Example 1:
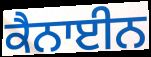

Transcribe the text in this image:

ਕੈਨਾਈਨ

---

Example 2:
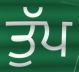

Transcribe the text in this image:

ਤੁੱਪ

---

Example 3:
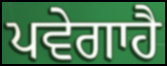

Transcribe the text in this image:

ਪਵੇਗਾਹੈ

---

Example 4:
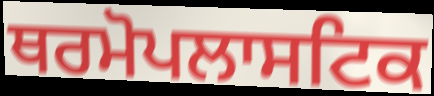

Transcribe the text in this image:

ਥਰਮੋਪਲਾਸਟਿਕ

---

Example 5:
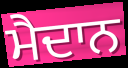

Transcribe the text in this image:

ਮੈਦਾਨ